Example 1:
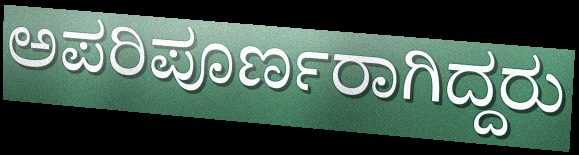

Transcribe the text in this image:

ಅಪರಿಪೂರ್ಣರಾಗಿದ್ದರು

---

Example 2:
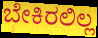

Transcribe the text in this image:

ಬೇಕಿರಲಿಲ್ಲ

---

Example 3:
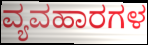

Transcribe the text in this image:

ವ್ಯವಹಾರಗಳ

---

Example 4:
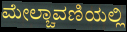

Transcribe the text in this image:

ಮೇಲ್ಚಾವಣಿಯಲ್ಲಿ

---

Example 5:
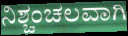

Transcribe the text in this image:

ನಿಶ್ಚಂಚಲವಾಗಿ